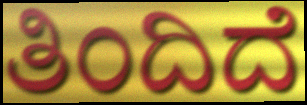
ತಿಂದಿದೆ